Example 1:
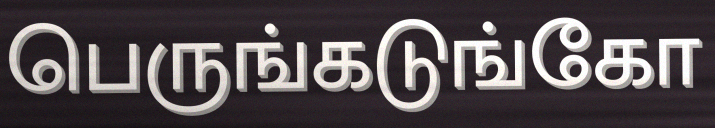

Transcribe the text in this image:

பெருங்கடுங்கோ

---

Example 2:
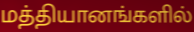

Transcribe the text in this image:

மத்தியானங்களில்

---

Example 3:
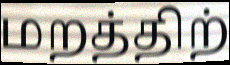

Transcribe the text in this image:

மறத்திற்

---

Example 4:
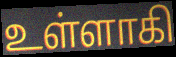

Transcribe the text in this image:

உள்ளாகி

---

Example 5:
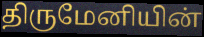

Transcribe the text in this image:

திருமேனியின்